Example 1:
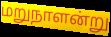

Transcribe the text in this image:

மறுநாளன்று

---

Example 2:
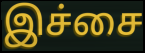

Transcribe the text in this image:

இச்சை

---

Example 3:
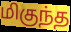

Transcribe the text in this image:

மிகுந்த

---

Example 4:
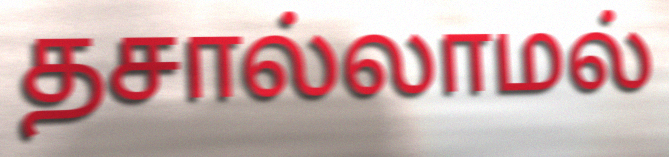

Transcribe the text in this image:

தசால்லாமல்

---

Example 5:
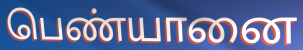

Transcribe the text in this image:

பெண்யானை